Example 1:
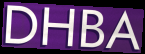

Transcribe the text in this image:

DHBA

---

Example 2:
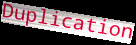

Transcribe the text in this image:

Duplication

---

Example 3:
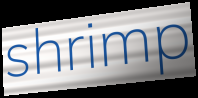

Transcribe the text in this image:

shrimp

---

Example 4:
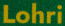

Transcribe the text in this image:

Lohri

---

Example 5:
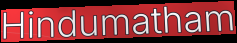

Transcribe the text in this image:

Hindumatham